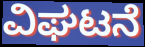
ವಿಘಟನೆ